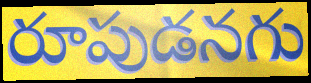
రూపుడనగు